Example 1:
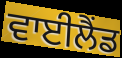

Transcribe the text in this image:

ਵਾਈਲੈਂਡ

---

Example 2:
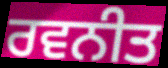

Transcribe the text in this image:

ਰਵਨੀਤ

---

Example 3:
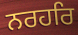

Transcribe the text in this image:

ਨਰਹਰਿ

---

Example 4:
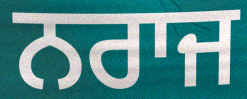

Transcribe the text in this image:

ਨਰਾਜ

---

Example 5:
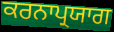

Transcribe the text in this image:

ਕਰਨਾਪ੍ਰਯਾਗ